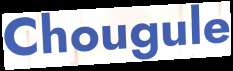
Chougule